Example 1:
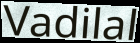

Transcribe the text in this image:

Vadilal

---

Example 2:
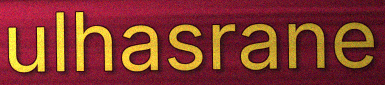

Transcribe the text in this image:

ulhasrane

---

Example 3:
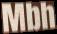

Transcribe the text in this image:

Mbh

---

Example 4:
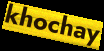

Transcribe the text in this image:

khochay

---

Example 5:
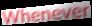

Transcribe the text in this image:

Whenever